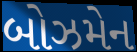
બોઝમેન